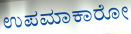
ಉಪಮಾಕಾರೋ